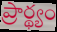
ప్రార్థ్యం